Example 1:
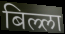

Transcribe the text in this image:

बिल्ला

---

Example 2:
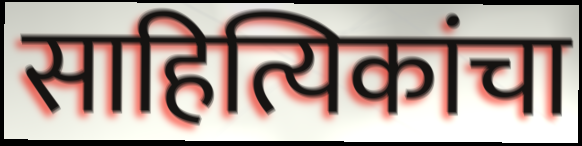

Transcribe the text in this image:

साहित्यिकांचा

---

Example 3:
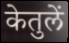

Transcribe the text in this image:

केतुलें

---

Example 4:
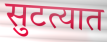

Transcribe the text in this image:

सुटत्यात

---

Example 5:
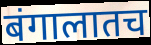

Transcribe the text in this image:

बंगालातच